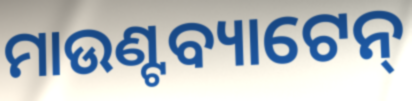
ମାଉଣ୍ଟବ୍ୟାଟେନ୍